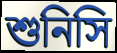
শুনিসি